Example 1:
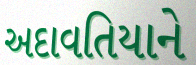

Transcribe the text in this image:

અદાવતિયાને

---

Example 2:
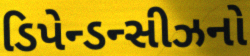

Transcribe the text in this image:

ડિપેન્ડન્સીઝનો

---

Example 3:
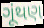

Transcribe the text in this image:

ગૂંથણ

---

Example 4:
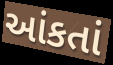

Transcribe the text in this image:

આંકતાં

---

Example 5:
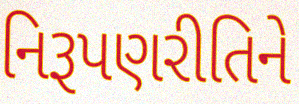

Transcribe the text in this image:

નિરૂપણરીતિને